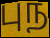
புந